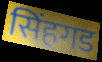
सिंहगड